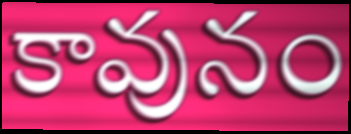
కావునం